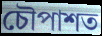
চৌপাশত